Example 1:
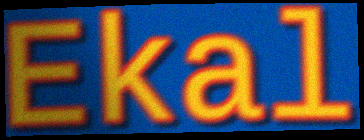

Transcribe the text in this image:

Ekal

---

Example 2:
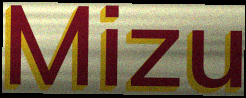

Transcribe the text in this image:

Mizu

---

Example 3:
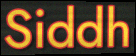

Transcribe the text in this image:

Siddh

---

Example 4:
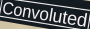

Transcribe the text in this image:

Convoluted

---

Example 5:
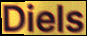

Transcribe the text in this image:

Diels